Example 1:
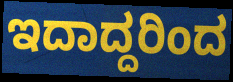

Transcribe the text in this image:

ಇದಾದ್ದರಿಂದ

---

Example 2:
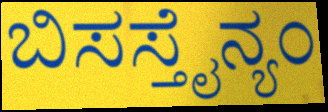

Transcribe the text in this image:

ಬಿಸಸ್ತೈನ್ಯಂ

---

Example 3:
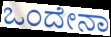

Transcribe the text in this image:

ಒಂದೇನಾ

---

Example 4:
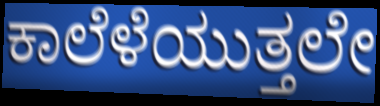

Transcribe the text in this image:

ಕಾಲೆಳೆಯುತ್ತಲೇ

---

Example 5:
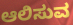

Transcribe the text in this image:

ಆಲಿಸುವ